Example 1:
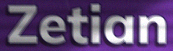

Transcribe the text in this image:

Zetian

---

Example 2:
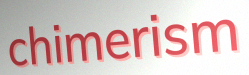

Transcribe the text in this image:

chimerism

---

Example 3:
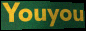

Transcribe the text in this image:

Youyou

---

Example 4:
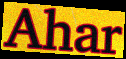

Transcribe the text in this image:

Ahar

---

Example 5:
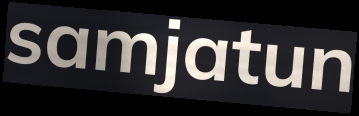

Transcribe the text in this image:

samjatun